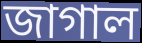
জাগাল